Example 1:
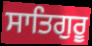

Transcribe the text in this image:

ਸਾਤਿਗੁਰੂ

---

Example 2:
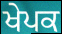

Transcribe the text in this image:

ਖੇਪਕ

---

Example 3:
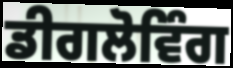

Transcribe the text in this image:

ਡੀਗਲੋਵਿੰਗ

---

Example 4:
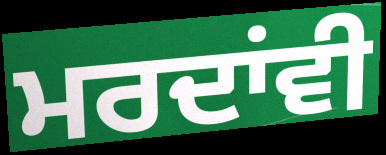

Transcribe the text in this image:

ਮਰਦਾਂਵੀ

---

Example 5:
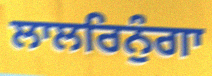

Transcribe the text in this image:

ਲਾਲਰਿਨੁੰਗਾ